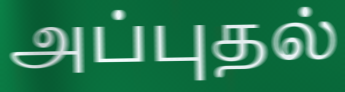
அப்புதல்